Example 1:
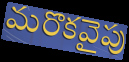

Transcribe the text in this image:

మరొకవైపు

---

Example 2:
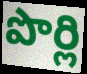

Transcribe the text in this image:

పొర్లి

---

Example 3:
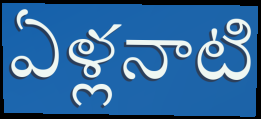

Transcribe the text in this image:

ఏళ్లనాటి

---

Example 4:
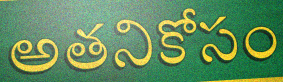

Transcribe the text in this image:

అతనికోసం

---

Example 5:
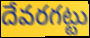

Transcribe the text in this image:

దేవరగట్టు